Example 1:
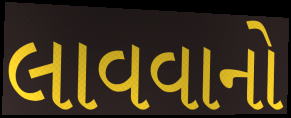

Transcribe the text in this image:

લાવવાનો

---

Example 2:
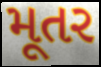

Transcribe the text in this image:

મૂતર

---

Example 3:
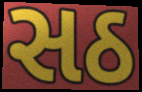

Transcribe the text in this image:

સઠ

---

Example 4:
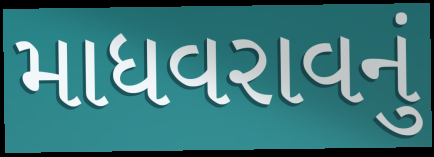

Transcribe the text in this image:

માધવરાવનું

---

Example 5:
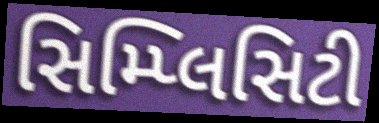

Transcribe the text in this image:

સિમ્પ્લિસિટી